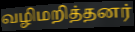
வழிமறித்தனர்